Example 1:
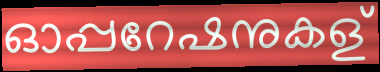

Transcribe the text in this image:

ഓപ്പറേഷനുകള്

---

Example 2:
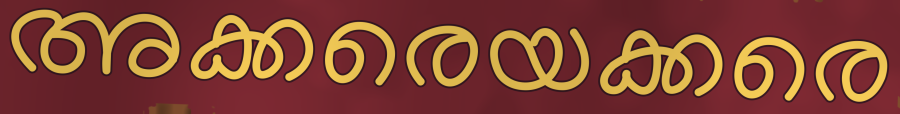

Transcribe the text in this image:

അക്കരെയക്കരെ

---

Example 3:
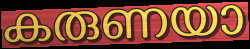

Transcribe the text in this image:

കരുണയാ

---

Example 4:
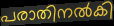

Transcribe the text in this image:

പരാതിനൽകി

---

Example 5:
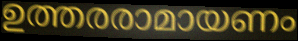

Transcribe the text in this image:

ഉത്തരരാമായണം